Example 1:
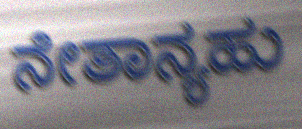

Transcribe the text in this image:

ನೇತಾನ್ಯಹು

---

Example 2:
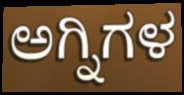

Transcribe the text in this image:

ಅಗ್ನಿಗಳ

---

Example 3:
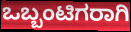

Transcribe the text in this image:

ಒಬ್ಬಂಟಿಗರಾಗಿ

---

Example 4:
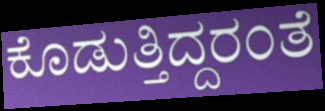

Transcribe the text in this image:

ಕೊಡುತ್ತಿದ್ದರಂತೆ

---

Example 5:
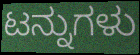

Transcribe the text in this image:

ಟನ್ನುಗಳು